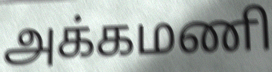
அக்கமணி